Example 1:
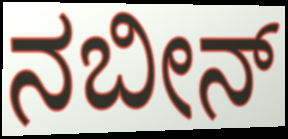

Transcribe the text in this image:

ನಬೀನ್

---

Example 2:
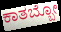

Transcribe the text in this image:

ಕಾತಬ್ಬೋ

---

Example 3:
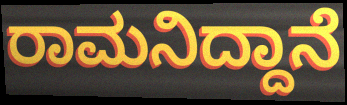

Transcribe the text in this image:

ರಾಮನಿದ್ದಾನೆ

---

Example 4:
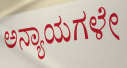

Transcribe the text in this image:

ಅನ್ಯಾಯಗಳೇ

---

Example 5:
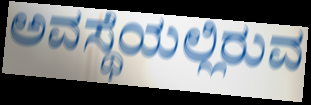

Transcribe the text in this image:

ಅವಸ್ಥೆಯಲ್ಲಿರುವ